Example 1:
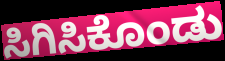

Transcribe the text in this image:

ಸಿಗಿಸಿಕೊಂಡು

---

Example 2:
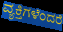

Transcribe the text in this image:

ವ್ಯಕ್ತಿಗಳೆಂದರೆ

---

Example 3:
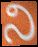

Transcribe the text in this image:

ನಿ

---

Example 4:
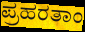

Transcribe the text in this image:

ಪ್ರಹರತಾಂ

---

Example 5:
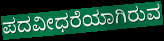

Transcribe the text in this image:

ಪದವೀಧರೆಯಾಗಿರುವ